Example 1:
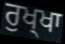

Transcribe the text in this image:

ਰੁਖ੍ਖਾ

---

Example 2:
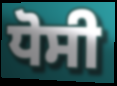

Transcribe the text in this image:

ਧੋਸੀ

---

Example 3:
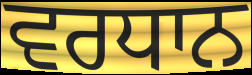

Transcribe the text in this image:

ਵਰਧਾਨ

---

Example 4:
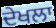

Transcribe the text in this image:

ਦੇਖਲਾ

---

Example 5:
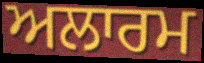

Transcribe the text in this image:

ਅਲਾਰਮ